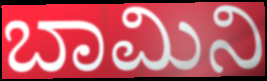
ಬಾಮಿನಿ